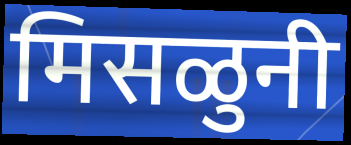
मिसळुनी